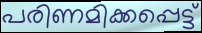
പരിണമിക്കപ്പെട്ട്